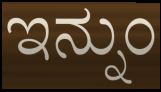
ಇನ್ನುಂ